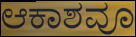
ಆಕಾಶವೂ